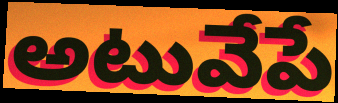
అటువేపే